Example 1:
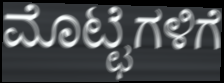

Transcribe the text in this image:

ಮೊಟ್ಟೆಗಳಿಗೆ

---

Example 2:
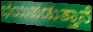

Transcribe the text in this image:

ಭಯಪಡುತ್ತಾನೆ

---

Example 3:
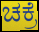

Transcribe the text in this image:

ಚಕ್ರೆ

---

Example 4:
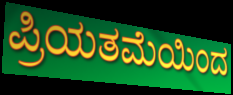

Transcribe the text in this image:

ಪ್ರಿಯತಮೆಯಿಂದ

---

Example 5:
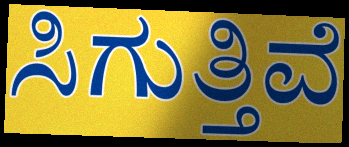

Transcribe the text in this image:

ಸಿಗುತ್ತಿವೆ